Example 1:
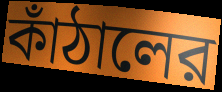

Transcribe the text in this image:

কাঁঠালের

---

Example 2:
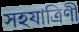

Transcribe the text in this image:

সহযাত্রিণী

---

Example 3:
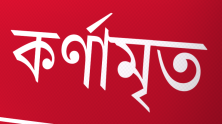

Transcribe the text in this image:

কর্ণামৃত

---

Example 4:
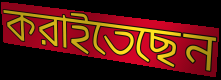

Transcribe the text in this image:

করাইতেছেন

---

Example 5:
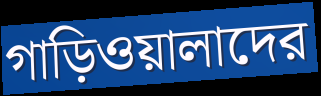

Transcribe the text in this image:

গাড়িওয়ালাদের